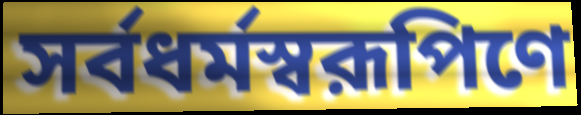
সর্বধর্মস্বরূপিণে